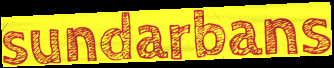
sundarbans